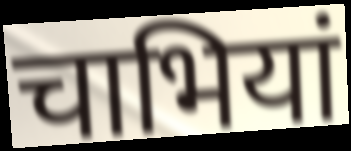
चाभियां